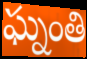
ఘ్నంతి